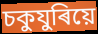
চকুযুৰিয়ে